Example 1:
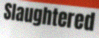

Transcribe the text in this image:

Slaughtered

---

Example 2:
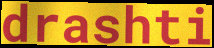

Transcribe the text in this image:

drashti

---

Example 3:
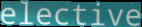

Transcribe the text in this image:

elective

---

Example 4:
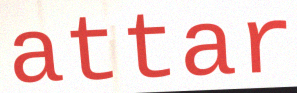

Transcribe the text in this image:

attar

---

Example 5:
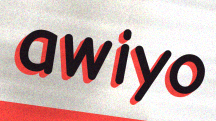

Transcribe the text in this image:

awiyo